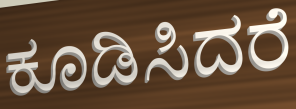
ಕೂಡಿಸಿದರೆ